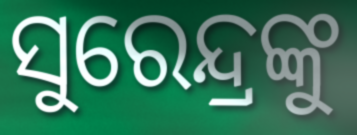
ସୁରେନ୍ଦ୍ରଙ୍କୁ